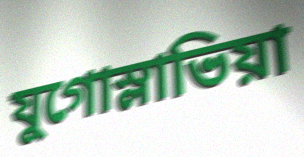
যুগোস্লাভিয়া